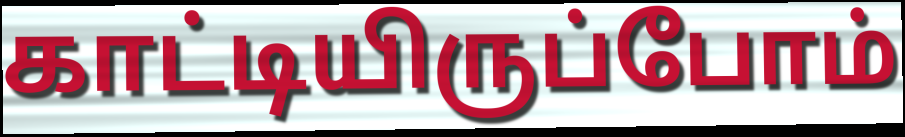
காட்டியிருப்போம்